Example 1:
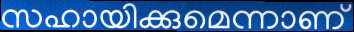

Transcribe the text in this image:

സഹായിക്കുമെന്നാണ്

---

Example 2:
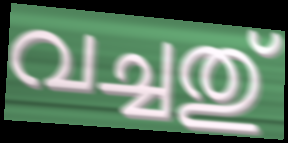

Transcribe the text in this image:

വച്ചതു്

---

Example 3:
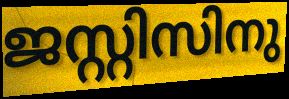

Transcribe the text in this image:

ജസ്റ്റിസിനു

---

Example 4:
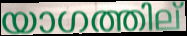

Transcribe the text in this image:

യാഗത്തില്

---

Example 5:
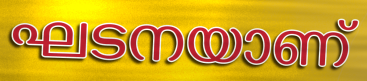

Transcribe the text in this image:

ഘടനയാണ്